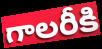
గాలరీకి